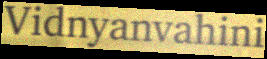
Vidnyanvahini